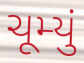
ચૂમ્યું